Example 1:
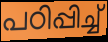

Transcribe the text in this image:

പഠിപ്പിച്ച്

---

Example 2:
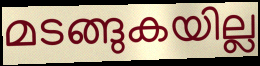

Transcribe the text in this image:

മടങ്ങുകയില്ല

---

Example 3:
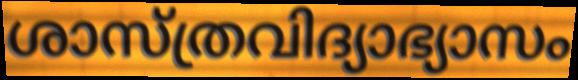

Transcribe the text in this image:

ശാസ്ത്രവിദ്യാഭ്യാസം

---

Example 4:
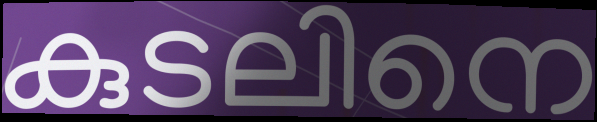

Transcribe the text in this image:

കുടലിനെ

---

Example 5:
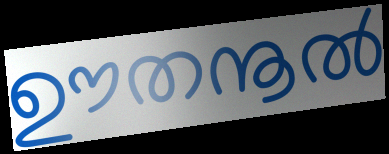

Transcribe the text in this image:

ഊതനൂൽ